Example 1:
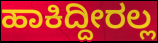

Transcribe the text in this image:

ಹಾಕಿದ್ದೀರಲ್ಲ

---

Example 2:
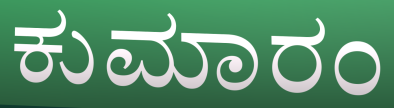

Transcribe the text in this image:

ಕುಮಾರಂ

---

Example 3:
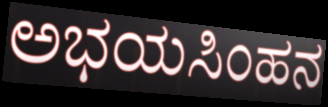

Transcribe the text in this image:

ಅಭಯಸಿಂಹನ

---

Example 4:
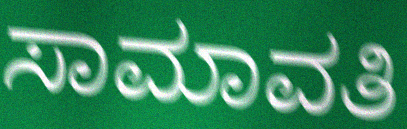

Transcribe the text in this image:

ಸಾಮಾವತಿ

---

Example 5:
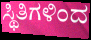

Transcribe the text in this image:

ಸ್ಥಿತಿಗಳಿಂದ